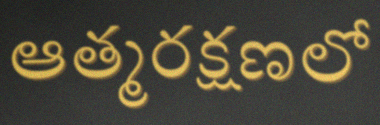
ఆత్మరక్షణలో